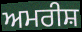
ਅਮਰੀਸ਼